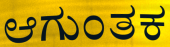
ಆಗುಂತಕ